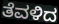
ತೆವಳಿದ